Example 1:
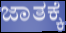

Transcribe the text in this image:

ಜಾತಕ್ಕೆ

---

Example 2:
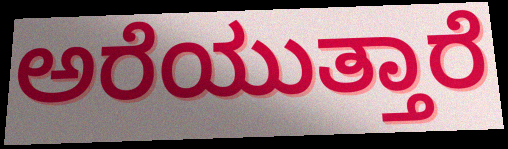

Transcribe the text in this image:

ಅರೆಯುತ್ತಾರೆ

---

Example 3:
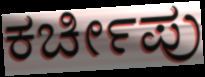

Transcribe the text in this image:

ಕರ್ಚೀಪು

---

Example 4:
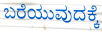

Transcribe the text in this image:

ಬರೆಯುವುದಕ್ಕೆ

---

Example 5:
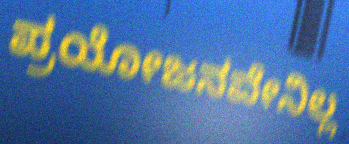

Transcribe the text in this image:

ಪ್ರಯೋಜನವೇನಿಲ್ಲ